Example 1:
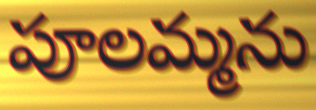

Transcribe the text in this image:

పూలమ్మను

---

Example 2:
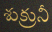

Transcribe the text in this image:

శుక్రునీ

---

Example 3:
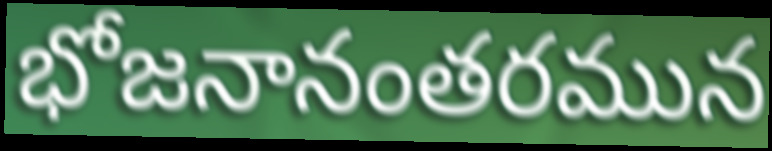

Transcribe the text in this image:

భోజనానంతరమున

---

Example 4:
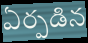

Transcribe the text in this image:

ఏర్పడిన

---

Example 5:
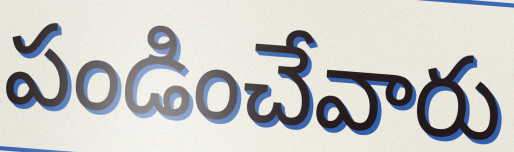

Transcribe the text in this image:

పండించేవారు